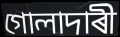
গোলাদাৰী